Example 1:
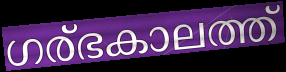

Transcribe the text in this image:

ഗര്ഭകാലത്ത്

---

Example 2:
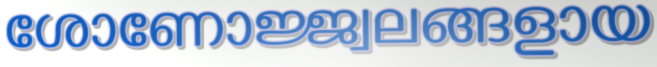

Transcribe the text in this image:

ശോണോജ്ജ്വലങ്ങളായ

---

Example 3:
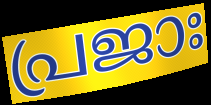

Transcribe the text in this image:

പ്രജാഃ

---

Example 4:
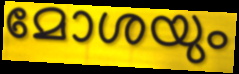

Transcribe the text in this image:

മോശയും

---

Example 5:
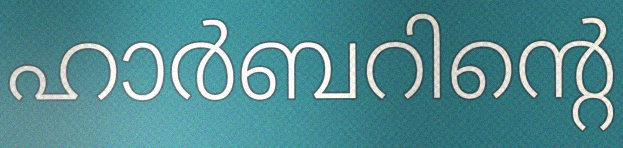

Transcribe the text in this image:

ഹാർബറിന്റെ